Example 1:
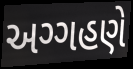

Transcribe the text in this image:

અગ્ગહણે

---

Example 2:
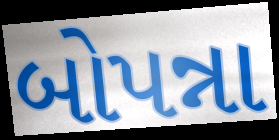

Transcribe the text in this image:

બોપન્ના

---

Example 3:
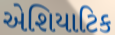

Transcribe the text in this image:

એશિયાટિક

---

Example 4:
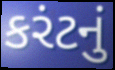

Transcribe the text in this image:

કરંટનું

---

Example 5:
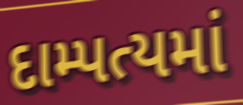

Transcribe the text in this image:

દામ્પત્યમાં